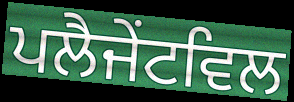
ਪਲੈਜੇਂਟਵਿਲ